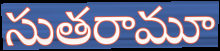
సుతరామూ